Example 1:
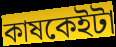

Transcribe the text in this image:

কাষকেইটা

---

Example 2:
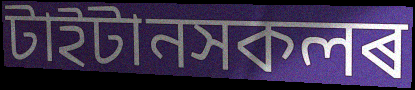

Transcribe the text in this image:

টাইটানসকলৰ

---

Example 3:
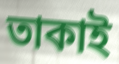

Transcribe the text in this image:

তাকাই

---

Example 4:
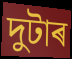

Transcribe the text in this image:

দুটাৰ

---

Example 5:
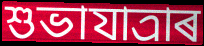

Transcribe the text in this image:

শুভাযাত্ৰাৰ